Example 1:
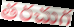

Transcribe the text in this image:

తరచుగ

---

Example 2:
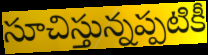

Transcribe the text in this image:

సూచిస్తున్నప్పటికీ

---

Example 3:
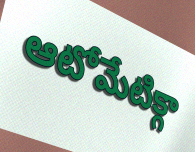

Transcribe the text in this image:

ఆటోమేటిక్గా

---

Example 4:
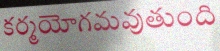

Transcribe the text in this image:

కర్మయోగమవుతుంది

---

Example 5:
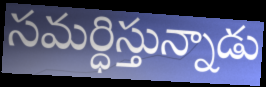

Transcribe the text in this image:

సమర్ధిస్తున్నాడు